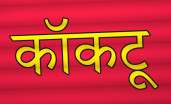
कॉकटू